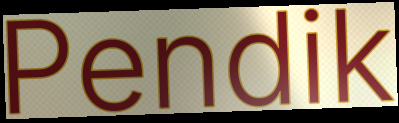
Pendik